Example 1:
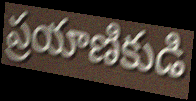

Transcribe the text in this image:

ప్రయాణికుడి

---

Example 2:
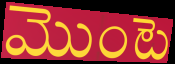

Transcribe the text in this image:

మొంటె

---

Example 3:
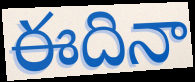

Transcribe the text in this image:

ఈదినా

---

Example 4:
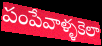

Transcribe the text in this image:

పంపేవాళ్ళకెలా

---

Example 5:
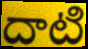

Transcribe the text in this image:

దాటి